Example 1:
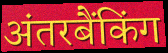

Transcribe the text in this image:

अंतरबैंकिंग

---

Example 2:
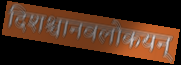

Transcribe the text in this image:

दिशश्चानवलोकयन्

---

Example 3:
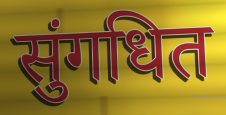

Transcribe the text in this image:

सुंगधित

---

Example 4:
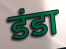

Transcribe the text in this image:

डंडा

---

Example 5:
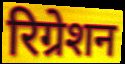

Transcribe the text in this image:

रिग्रेशन